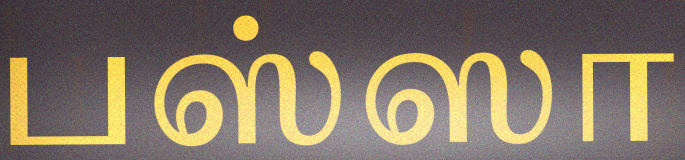
பஸ்ஸா